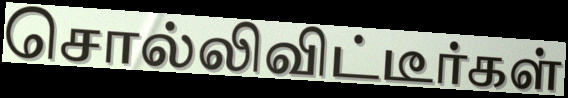
சொல்லிவிட்டீர்கள்